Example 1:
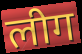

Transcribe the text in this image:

लीग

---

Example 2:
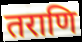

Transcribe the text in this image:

तराणि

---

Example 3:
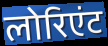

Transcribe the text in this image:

लोरिएंट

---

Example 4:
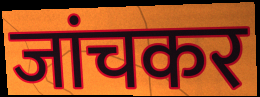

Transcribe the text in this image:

जांचकर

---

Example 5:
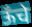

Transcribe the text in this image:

ऊँचे